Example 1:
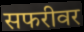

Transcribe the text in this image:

सफरीवर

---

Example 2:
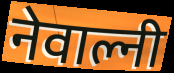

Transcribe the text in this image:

नेवाल्नी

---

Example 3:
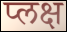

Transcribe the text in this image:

प्लक्ष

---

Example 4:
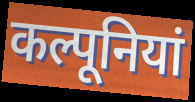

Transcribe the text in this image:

कल्पूनियां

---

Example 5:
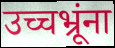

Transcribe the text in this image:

उच्चभ्रूंना